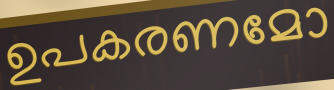
ഉപകരണമോ